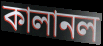
কালানল